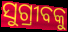
ସୁଗ୍ରୀବକୁ